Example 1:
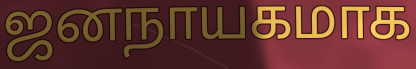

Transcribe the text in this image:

ஜனநாயகமாக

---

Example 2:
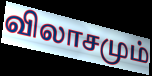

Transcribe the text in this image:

விலாசமும்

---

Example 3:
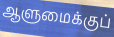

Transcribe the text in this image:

ஆளுமைக்குப்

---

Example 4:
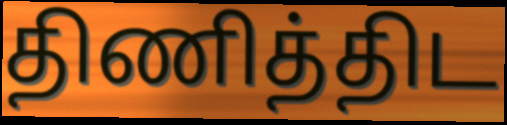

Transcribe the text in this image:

திணித்திட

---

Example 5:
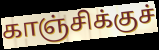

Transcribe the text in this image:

காஞ்சிக்குச்